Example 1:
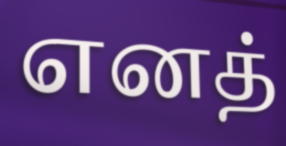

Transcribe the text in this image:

எனத்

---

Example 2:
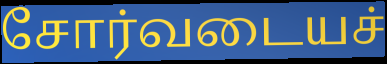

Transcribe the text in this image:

சோர்வடையச்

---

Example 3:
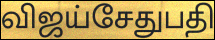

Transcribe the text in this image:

விஜய்சேதுபதி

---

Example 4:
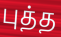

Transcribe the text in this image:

புத்த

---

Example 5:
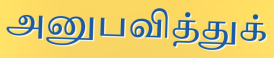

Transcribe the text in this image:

அனுபவித்துக்